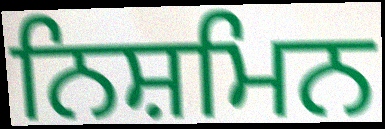
ਨਿਸ਼ਮਿਨ